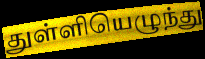
துள்ளியெழுந்து